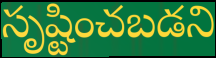
సృష్టించబడని